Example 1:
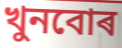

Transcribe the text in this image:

খুনবোৰ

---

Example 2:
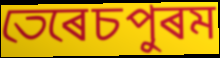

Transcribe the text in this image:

তেৰেচপুৰম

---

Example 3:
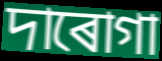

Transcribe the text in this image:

দাৰোগা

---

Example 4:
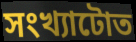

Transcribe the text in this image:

সংখ্যাটোত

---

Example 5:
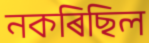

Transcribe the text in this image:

নকৰিছিল